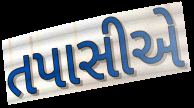
તપાસીએ